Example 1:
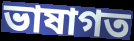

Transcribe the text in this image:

ভাষাগত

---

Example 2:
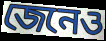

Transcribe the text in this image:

জেনেও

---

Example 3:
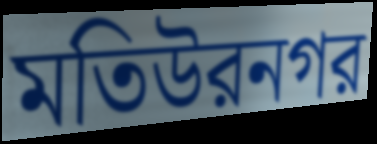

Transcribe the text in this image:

মতিউরনগর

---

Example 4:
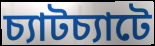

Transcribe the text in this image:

চ্যাটচ্যাটে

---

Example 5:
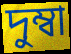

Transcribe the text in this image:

দুম্বা